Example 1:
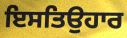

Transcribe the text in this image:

ਇਸਤਿਉਹਾਰ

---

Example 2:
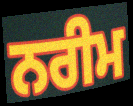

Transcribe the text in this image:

ਨਰੀਮ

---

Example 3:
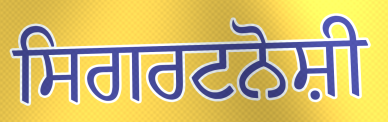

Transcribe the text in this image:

ਸਿਗਰਟਨੋਸ਼ੀ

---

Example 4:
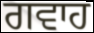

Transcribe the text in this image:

ਗਵਾਹ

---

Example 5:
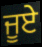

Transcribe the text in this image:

ਜੂਏ